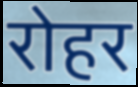
रोहर